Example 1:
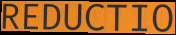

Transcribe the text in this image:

REDUCTIO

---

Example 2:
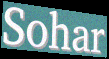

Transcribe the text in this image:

Sohar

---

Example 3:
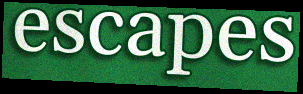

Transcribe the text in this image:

escapes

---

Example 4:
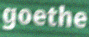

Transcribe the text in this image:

goethe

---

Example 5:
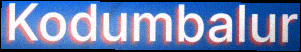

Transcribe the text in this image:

Kodumbalur